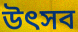
উত্‍সব